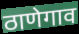
ठाणेगाव